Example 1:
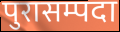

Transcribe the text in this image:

पुरासम्पदा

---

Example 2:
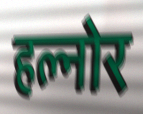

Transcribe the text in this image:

हल्नोर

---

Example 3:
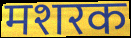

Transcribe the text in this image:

मशरक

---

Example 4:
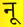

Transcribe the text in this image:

नू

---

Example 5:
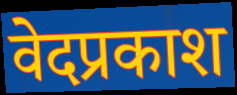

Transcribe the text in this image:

वेदप्रकाश